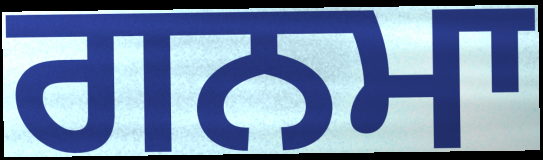
ਗਨਮਾ